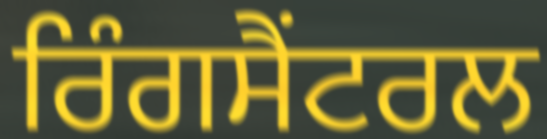
ਰਿੰਗਸੈਂਟਰਲ